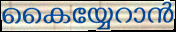
കൈയ്യേറാൻ